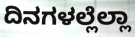
ದಿನಗಳಲ್ಲೆಲ್ಲಾ